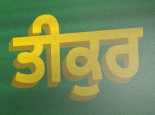
ਤੀਕੁਰ